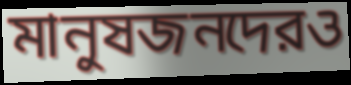
মানুষজনদেরও